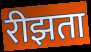
रीझता